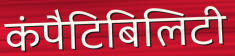
कंपैटिबिलिटी